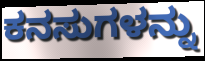
ಕನಸುಗಳನ್ನು